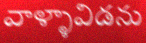
వాళ్ళావిడను